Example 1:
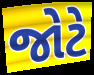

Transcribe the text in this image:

જોટે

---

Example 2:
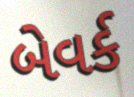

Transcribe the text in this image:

બેવર્ક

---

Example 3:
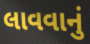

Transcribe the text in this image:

લાવવાનું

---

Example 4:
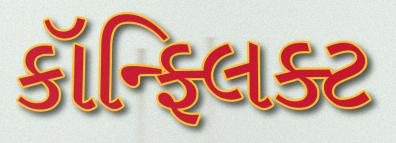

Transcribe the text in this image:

કૉન્ફ્લિક્ટ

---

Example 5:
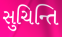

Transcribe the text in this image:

સુચિન્તિ